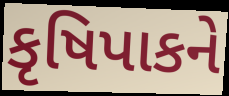
કૃષિપાકને